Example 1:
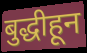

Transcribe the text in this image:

बुद्धीहून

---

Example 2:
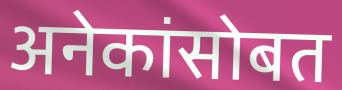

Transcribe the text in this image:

अनेकांसोबत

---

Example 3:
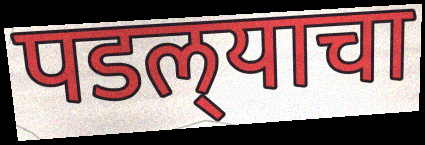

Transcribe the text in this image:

पडल्याचा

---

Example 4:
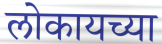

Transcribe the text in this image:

लोकायच्या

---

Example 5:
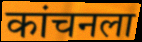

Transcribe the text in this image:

कांचनला